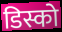
डिस्को